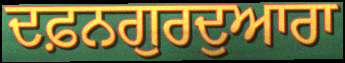
ਦਫ਼ਨਗੁਰਦੁਆਰਾ